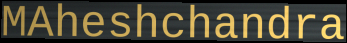
MAheshchandra